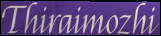
Thiraimozhi